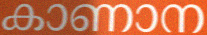
കാണാന